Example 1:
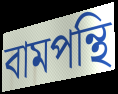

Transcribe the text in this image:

বামপন্থি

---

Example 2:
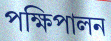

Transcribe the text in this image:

পক্ষিপালন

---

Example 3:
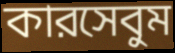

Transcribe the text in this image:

কারসেবুম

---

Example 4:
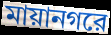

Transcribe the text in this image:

মায়ানগরে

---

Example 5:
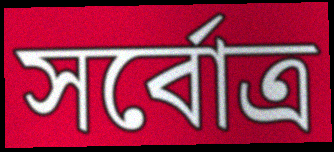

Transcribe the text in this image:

সর্বোত্র